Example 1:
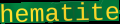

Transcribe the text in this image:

hematite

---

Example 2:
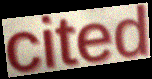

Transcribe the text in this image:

cited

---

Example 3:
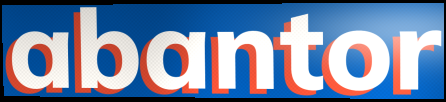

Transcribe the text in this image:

abantor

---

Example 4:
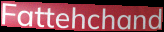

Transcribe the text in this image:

Fattehchand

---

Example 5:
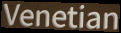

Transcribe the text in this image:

Venetian